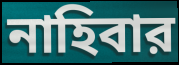
নাহিবার